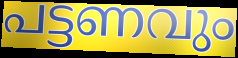
പട്ടണവും